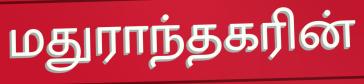
மதுராந்தகரின்